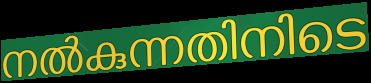
നൽകുന്നതിനിടെ